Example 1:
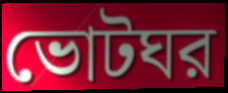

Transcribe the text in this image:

ভোটঘর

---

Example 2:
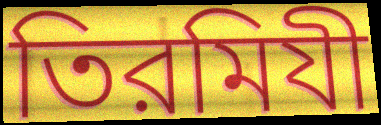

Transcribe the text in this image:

তিরমিযী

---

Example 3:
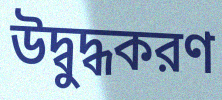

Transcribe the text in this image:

উদ্বুদ্ধকরণ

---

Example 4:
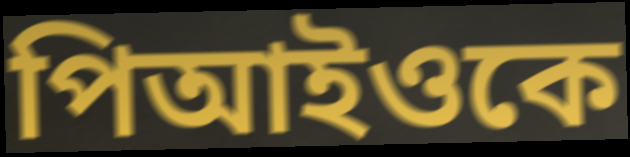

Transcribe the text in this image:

পিআইওকে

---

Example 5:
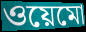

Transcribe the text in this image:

ওয়েমো